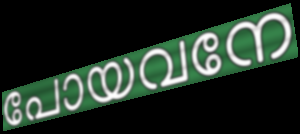
പോയവനേ